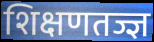
शिक्षणतज्ज्ञ